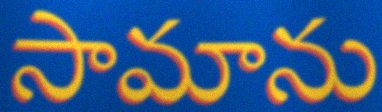
సామాను